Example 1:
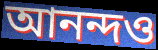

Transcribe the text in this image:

আনন্দও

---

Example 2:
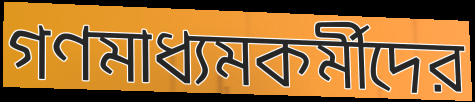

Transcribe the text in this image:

গণমাধ্যমকর্মীদের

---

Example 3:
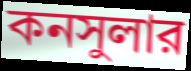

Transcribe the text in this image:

কনসুলার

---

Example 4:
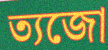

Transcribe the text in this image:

ত্যজো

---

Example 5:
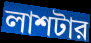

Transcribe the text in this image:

লাশটার